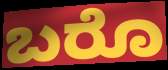
ಬರೊ